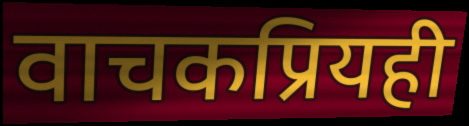
वाचकप्रियही